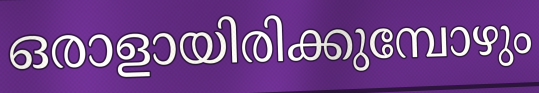
ഒരാളായിരിക്കുമ്പോഴും